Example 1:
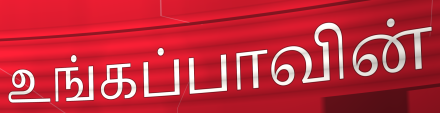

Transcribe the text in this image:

உங்கப்பாவின்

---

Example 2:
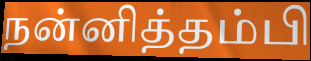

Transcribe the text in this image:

நன்னித்தம்பி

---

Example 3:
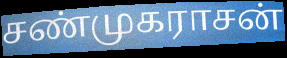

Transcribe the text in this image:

சண்முகராசன்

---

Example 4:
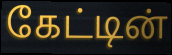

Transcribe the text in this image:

கேட்டின்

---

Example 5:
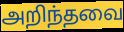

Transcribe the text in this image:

அறிந்தவை